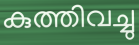
കുത്തിവച്ചു